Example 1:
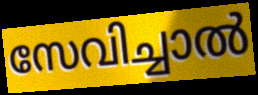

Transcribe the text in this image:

സേവിച്ചാൽ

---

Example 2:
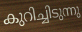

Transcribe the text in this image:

കുറിച്ചിടുന്നു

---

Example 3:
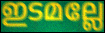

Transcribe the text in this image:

ഇടമല്ലേ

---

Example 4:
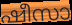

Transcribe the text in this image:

ഷീസാ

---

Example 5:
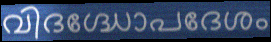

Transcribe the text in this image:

വിദഗ്ദ്ധോപദേശം